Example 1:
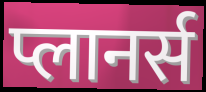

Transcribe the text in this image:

प्लानर्स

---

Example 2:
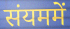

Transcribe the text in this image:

संयममें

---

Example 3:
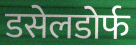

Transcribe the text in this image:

डसेलडोर्फ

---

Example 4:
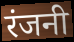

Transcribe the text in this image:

रंजनी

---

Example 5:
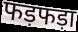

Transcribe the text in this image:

फड़फड़ा